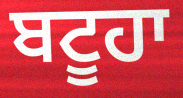
ਬਟੂਹਾ